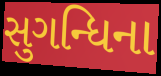
સુગન્ધિના